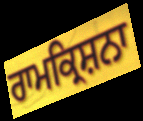
ਰਾਮਕ੍ਰਿਸ਼ਨਾ